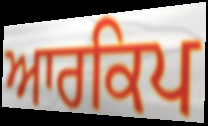
ਆਰਕਿਪ